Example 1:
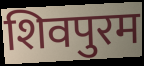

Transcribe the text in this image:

शिवपुरम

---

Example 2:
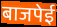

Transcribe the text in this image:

बाजपेई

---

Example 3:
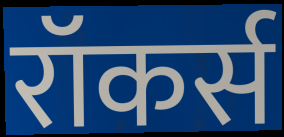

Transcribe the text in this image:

रॉकर्स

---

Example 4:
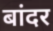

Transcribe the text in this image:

बांदर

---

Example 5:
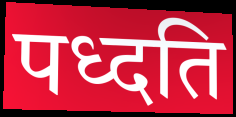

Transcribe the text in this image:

पध्दति